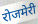
रोजमेरी